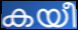
കയീ